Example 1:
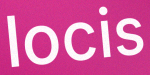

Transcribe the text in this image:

locis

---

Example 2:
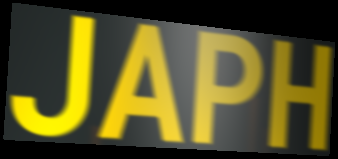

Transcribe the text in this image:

JAPH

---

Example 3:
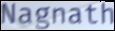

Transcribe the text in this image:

Nagnath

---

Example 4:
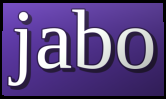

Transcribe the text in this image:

jabo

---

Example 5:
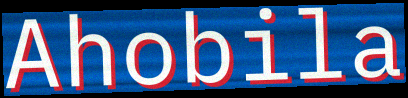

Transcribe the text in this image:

Ahobila